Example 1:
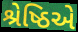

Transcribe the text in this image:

શ્રેષ્ઠિએ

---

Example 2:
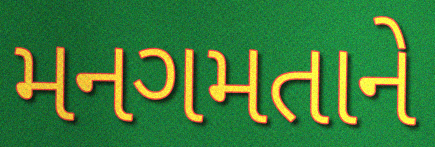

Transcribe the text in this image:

મનગમતાને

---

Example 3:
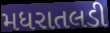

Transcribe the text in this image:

મધરાતલડી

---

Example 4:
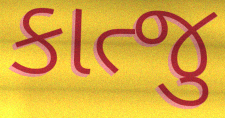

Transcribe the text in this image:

કાત્જુ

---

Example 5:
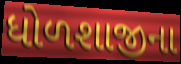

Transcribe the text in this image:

ધોળશાજીના